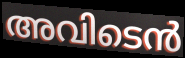
അവിടെൻ